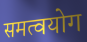
समत्वयोग